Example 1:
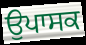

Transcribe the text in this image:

ਉਪਾਸਕ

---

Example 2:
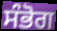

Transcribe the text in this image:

ਸੰਭੋਗ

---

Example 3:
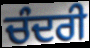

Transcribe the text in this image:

ਚੰਦਰੀ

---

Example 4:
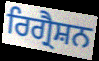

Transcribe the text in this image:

ਰਿਗ੍ਰੈਸ਼ਨ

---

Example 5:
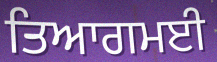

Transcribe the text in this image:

ਤਿਆਗਮਈ